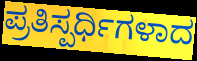
ಪ್ರತಿಸ್ಪರ್ಧಿಗಳಾದ